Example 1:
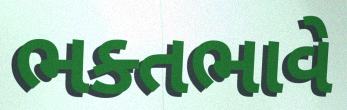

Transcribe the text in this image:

ભક્તભાવે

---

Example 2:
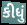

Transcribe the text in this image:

કીધું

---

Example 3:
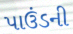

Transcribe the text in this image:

પાઉંડની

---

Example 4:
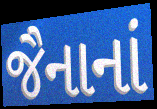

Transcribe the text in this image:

જૈનાનાં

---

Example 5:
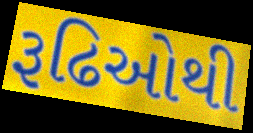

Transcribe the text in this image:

રૂઢિઓથી